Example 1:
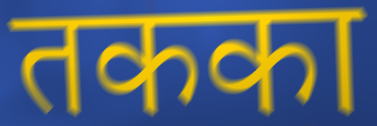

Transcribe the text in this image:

तकका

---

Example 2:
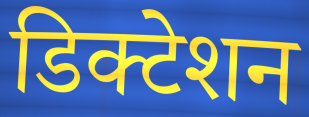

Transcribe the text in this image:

डिक्टेशन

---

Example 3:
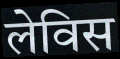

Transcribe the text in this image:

लेविस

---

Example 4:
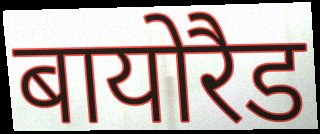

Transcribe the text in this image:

बायोरैड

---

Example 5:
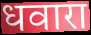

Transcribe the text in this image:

धवारा